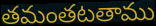
తమంతటతాము